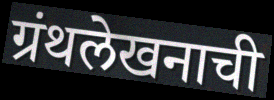
ग्रंथलेखनाची